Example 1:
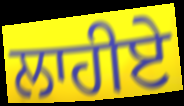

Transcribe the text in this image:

ਲਾਹੀਏ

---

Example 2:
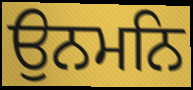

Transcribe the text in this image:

ਉਨਮਨਿ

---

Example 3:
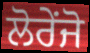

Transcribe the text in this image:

ਲੋਰੇਂਜੋ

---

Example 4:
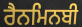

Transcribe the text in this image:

ਰੈਨਮਿਨਬੀ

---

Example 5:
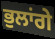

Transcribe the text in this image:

ਭੁਲਾਂਗੇ